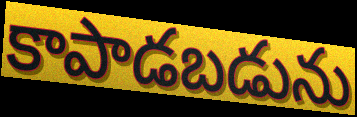
కాపాడబడును